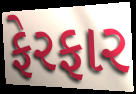
ફેરફાર